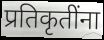
प्रतिकृतींना